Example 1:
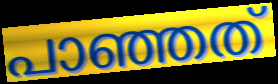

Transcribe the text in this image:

പാഞ്ഞത്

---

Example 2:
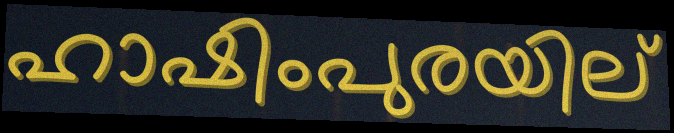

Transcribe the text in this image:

ഹാഷിംപുരയില്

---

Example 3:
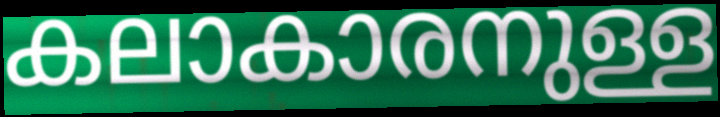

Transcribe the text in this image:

കലാകാരനുള്ള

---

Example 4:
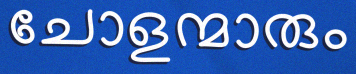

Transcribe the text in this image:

ചോളന്മാരും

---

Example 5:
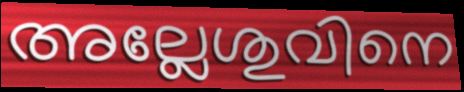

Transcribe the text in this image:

അല്ലേശുവിനെ